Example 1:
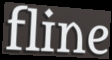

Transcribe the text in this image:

fline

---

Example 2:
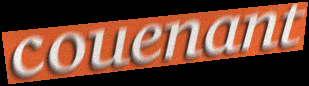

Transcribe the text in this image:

couenant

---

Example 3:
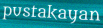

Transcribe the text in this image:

pustakayan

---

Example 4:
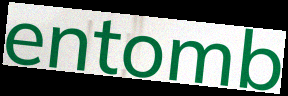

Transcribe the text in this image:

entomb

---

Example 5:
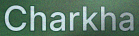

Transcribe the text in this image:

Charkha